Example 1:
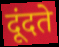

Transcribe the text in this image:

दूंदते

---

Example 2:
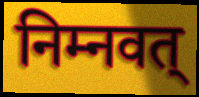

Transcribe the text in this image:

निम्नवत्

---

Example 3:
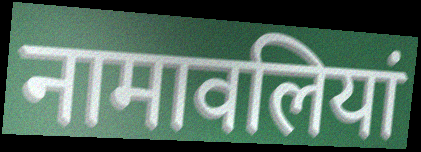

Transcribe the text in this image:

नामावलियां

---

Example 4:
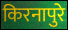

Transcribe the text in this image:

किरनापुरे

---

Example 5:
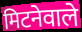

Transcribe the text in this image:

मिटनेवाले